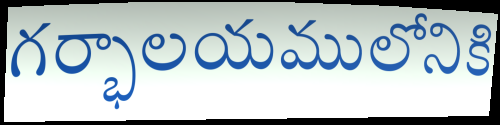
గర్భాలయములోనికి